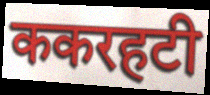
ककरहटी